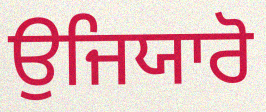
ਉਜਿਯਾਰੋ